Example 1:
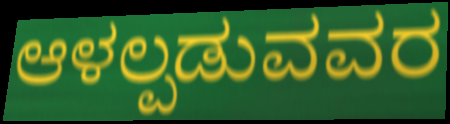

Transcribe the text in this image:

ಆಳಲ್ಪಡುವವರ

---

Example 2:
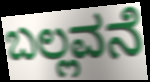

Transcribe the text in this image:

ಬಲ್ಲವನೆ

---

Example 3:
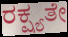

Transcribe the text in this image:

ರಕ್ಷ್ಯತೇ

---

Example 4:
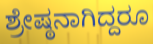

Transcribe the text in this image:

ಶ್ರೇಷ್ಠನಾಗಿದ್ದರೂ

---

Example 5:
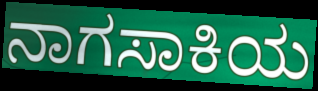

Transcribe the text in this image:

ನಾಗಸಾಕಿಯ